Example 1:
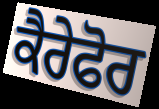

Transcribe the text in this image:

ਕੈਰੇਫੋਰ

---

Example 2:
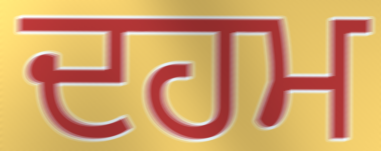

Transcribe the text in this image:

ਦਹਮ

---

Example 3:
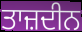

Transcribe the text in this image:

ਤਾਜ਼ਦੀਨ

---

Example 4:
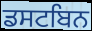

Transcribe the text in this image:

ਡਸਟਬਿਨ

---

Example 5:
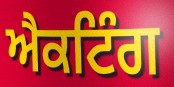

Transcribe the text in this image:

ਐਕਟਿੰਗ